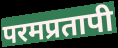
परमप्रतापी